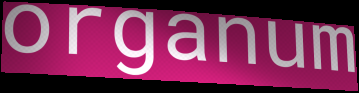
organum